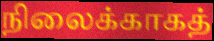
நிலைக்காகத்